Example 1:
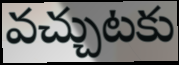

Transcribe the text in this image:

వచ్చుటకు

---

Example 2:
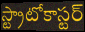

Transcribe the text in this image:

స్ట్రాటోకాస్టర్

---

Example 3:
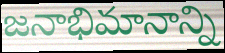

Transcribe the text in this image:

జనాభిమానాన్ని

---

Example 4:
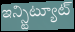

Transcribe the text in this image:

ఇన్స్టిట్యూట్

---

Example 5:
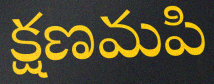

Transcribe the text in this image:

క్షణమపి